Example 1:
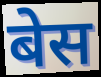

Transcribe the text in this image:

बेस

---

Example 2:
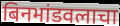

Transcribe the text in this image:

बिनभांडवलाचा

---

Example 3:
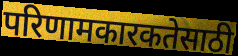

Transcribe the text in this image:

परिणामकारकतेसाठी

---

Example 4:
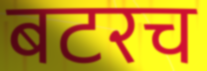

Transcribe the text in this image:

बटरच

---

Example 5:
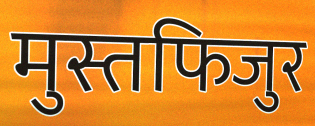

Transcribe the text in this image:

मुस्तफिजुर